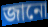
জানো